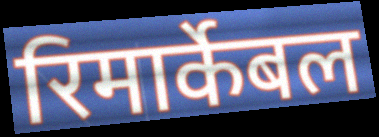
रिमार्केबल